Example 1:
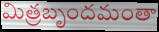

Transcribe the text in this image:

మిత్రబృందమంతా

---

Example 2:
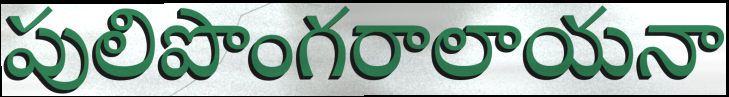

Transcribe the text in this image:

పులిపొంగరాలాయనా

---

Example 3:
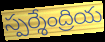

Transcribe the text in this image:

స్పర్శేంద్రియ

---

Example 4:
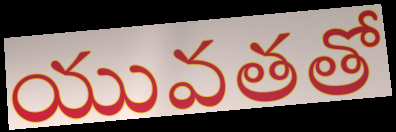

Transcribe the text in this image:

యువతతో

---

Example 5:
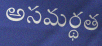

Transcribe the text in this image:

అసమర్థత